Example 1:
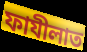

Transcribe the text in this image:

ফাযীলাত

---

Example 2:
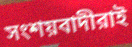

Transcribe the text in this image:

সংশয়বাদীরাই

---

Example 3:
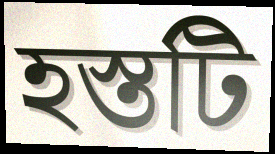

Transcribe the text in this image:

হস্তটি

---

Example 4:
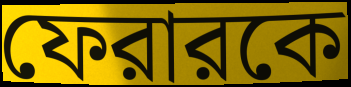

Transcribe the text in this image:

ফেরারকে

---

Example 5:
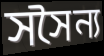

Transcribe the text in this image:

সসৈন্য